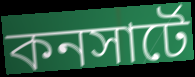
কনসার্টে